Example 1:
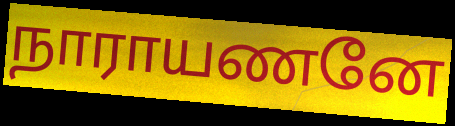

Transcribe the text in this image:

நாராயணனே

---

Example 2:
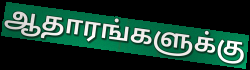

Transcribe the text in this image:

ஆதாரங்களுக்கு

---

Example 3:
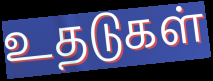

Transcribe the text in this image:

உதடுகள்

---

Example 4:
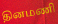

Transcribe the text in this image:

தினமணி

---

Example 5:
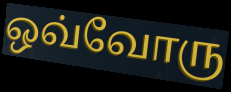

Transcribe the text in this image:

ஒவ்வோரு